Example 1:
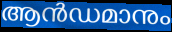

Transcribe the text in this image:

ആൻഡമാനും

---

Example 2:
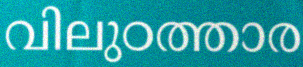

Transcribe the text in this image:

വിലുഠത്താര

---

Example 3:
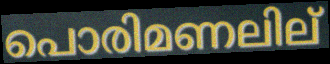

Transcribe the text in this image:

പൊരിമണലില്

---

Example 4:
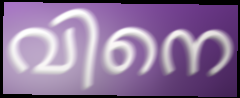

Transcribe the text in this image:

വിനെ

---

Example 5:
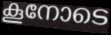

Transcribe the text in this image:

കൂനോടെ